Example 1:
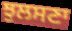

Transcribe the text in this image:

ਝੁਲਸਣਾ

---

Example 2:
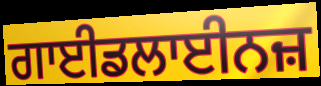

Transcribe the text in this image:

ਗਾਈਡਲਾਈਨਜ਼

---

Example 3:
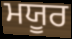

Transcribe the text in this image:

ਮਯੂਰ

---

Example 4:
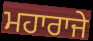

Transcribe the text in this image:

ਮਹਾਰਾਜੇ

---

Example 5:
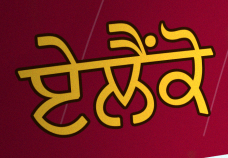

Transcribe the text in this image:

ਏਲੈਂਕੋ